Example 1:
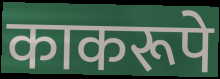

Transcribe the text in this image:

काकरूपे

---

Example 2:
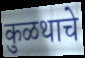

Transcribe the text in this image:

कुळथाचे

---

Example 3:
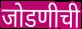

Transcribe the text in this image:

जोडणीची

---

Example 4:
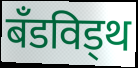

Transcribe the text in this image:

बँडविड्थ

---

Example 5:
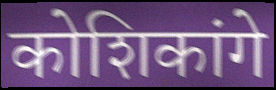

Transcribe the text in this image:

कोशिकांगे